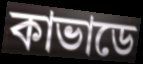
কাভাডে